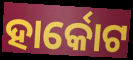
ହାର୍କୋଟ